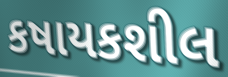
કષાયકશીલ